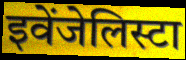
इवेंजेलिस्टा